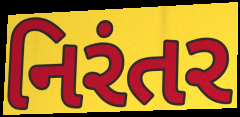
નિરંતર